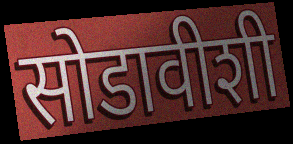
सोडावीशी